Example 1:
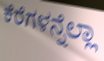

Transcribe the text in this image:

ಕೆರೆಗಳನ್ನೆಲ್ಲಾ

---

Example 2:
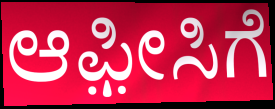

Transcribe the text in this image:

ಆಫ಼ೀಸಿಗೆ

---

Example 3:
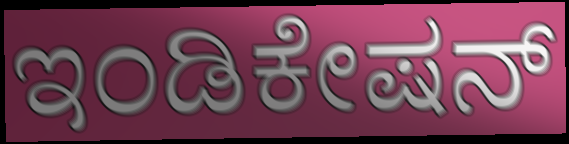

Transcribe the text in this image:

ಇಂಡಿಕೇಷನ್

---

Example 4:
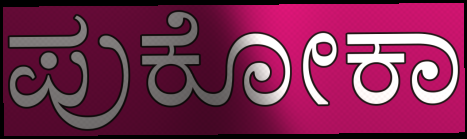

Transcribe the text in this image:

ಪುಕೋಕಾ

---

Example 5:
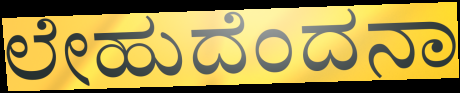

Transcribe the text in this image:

ಲೇಹುದೆಂದನಾ